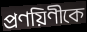
প্রণয়িণীকে